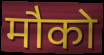
मौको